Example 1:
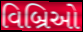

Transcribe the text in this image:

વિબ્રિઓ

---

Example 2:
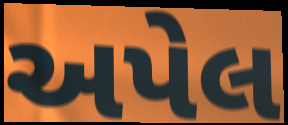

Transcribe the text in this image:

અપેલ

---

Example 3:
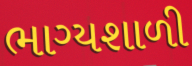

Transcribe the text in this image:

ભાગ્યશાળી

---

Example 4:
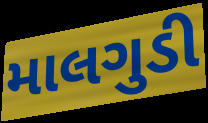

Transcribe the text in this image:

માલગુડી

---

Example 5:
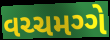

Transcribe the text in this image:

વચ્ચમગ્ગે